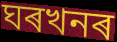
ঘৰখনৰ